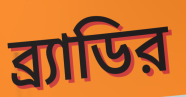
ব্র্যাডির